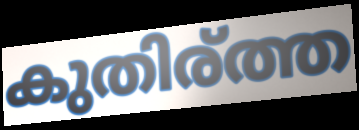
കുതിര്ത്ത